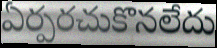
ఏర్పరచుకొనలేదు